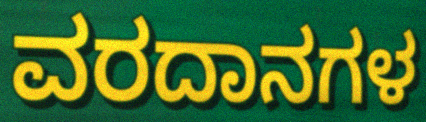
ವರದಾನಗಳ